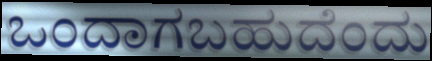
ಒಂದಾಗಬಹುದೆಂದು